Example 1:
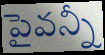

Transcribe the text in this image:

పైవన్నీ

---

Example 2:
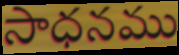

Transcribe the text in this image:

సాధనము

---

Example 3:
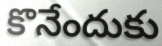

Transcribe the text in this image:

కొనేందుకు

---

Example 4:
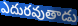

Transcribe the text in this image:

ఎదురవుతాడు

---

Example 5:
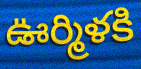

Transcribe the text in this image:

ఊర్మిళకి